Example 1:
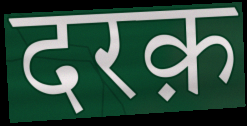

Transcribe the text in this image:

दरक़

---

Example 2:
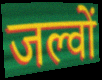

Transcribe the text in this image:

जल्वों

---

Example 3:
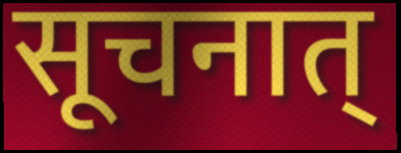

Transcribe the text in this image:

सूचनात्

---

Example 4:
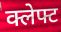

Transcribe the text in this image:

क्लेफ्ट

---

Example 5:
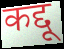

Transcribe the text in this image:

कद्दू